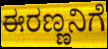
ಈರಣ್ಣನಿಗೆ